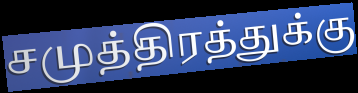
சமுத்திரத்துக்கு